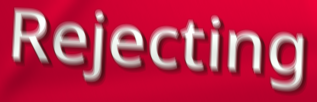
Rejecting